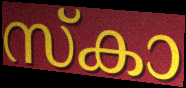
സ്കാ